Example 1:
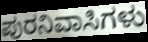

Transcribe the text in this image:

ಪುರನಿವಾಸಿಗಳು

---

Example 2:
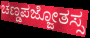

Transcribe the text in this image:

ಚಣ್ಡಪಜ್ಜೋತಸ್ಸ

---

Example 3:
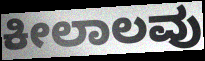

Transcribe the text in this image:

ಕೀಲಾಲವು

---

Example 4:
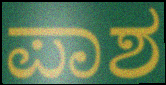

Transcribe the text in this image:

ಪಾಶ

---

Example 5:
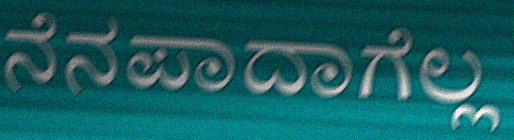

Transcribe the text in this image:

ನೆನಪಾದಾಗೆಲ್ಲ